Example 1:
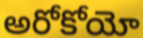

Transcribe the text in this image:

అరోకోయో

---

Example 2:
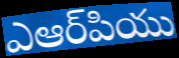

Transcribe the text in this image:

ఎఆర్‌పియు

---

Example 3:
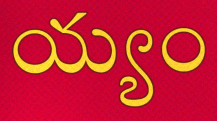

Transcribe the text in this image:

య్యం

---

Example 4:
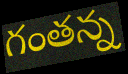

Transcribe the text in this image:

గంతన్న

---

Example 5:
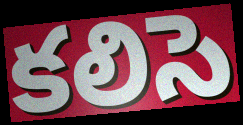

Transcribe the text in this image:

కలిసె